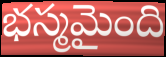
భస్మమైంది